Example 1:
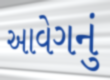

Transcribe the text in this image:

આવેગનું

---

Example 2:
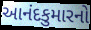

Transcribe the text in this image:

આનંદકુમારનો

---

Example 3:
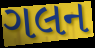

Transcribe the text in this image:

ગલન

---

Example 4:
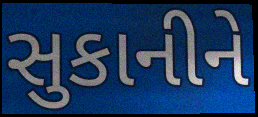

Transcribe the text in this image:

સુકાનીને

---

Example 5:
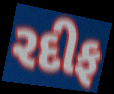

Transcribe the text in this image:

રદીફ